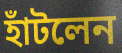
হাঁটলেন